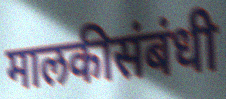
मालकीसंबंधी